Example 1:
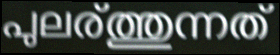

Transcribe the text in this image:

പുലര്ത്തുന്നത്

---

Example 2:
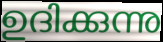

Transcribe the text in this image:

ഉദിക്കുന്നു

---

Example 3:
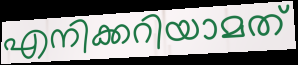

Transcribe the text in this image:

എനിക്കറിയാമത്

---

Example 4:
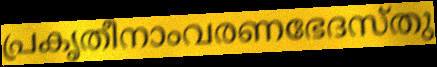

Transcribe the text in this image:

പ്രകൃതീനാംവരണഭേദസ്തു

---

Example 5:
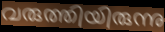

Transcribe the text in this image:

വരുത്തിയിരുന്നു